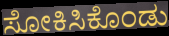
ಸೋಕಿಸಿಕೊಂಡು